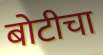
बोटीचा